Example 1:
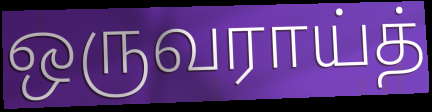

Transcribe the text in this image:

ஒருவராய்த்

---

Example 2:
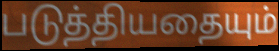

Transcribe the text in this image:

படுத்தியதையும்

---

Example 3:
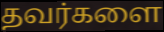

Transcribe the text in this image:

தவர்களை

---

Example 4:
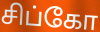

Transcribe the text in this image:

சிப்கோ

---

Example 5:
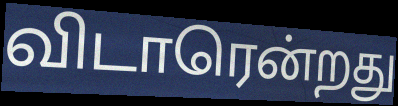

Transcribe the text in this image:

விடாரென்றது